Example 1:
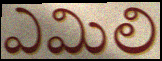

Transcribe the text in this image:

ఎమిలి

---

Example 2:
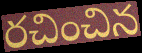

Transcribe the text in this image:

రచించిన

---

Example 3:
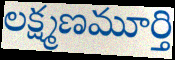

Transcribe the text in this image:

లక్ష్మణమూర్తి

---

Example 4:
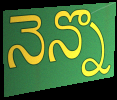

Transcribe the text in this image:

నెన్నొ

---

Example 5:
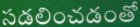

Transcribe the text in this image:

సడలించడంతో